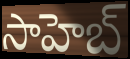
సాహెబ్